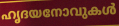
ഹൃദയനോവുകൾ